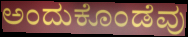
ಅಂದುಕೊಂಡೆವು